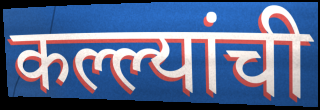
कल्ल्यांची